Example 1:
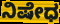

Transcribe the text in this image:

ನಿಷೇಧ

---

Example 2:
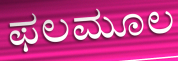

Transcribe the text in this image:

ಫಲಮೂಲ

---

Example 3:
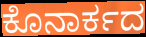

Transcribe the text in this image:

ಕೊನಾರ್ಕದ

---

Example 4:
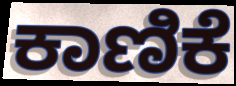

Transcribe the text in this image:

ಕಾಣಿಕೆ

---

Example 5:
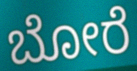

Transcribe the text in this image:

ಬೋರೆ